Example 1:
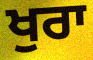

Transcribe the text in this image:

ਖੁਰਾ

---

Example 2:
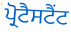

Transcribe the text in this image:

ਪ੍ਰੋਟੈਸਟੈਂਟ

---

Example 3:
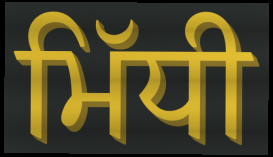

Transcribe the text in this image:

ਮਿੱਧੀ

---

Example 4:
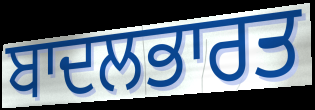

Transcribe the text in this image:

ਬਾਦਲਭਾਰਤ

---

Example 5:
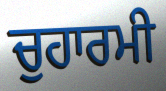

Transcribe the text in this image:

ਚੁਹਾਰਮੀ